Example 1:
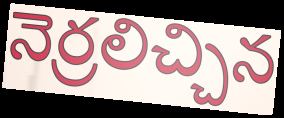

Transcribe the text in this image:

నెర్రలిచ్చిన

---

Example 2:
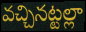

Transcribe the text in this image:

వచ్చినట్టల్లా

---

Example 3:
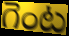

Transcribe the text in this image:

గెంట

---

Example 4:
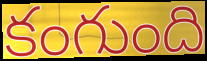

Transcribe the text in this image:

కంగుంది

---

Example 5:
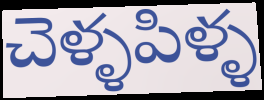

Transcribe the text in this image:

చెళ్ళపిళ్ళ